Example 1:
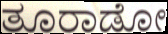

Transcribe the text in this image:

ತೂರಾಡೋ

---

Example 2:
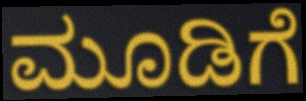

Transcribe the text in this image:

ಮೂಡಿಗೆ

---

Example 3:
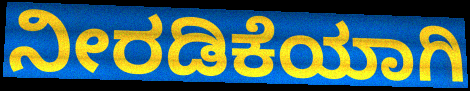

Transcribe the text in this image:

ನೀರಡಿಕೆಯಾಗಿ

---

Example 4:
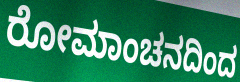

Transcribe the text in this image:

ರೋಮಾಂಚನದಿಂದ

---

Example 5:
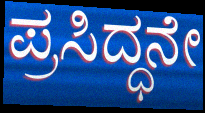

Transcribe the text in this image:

ಪ್ರಸಿದ್ಧನೇ